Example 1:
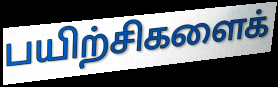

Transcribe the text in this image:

பயிற்சிகளைக்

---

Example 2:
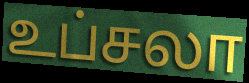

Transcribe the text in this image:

உப்சலா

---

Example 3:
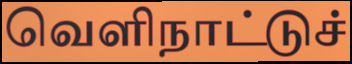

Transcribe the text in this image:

வெளிநாட்டுச்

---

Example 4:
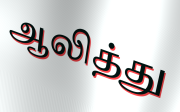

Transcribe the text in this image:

ஆலித்து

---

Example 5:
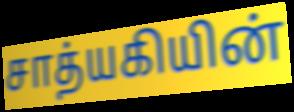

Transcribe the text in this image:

சாத்யகியின்